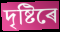
দৃষ্টিৰে